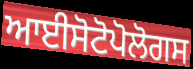
ਆਈਸੋਟੋਪੋਲੋਗਸ